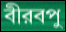
বীরবপু